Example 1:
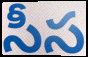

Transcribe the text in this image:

సీస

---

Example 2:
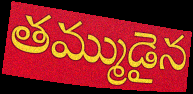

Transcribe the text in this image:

తమ్ముడైన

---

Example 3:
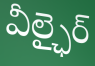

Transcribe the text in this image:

వీల్ఛైర్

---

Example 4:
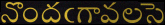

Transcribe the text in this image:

నొందఁగావలసె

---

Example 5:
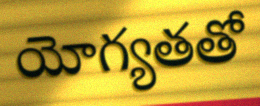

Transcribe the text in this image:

యోగ్యతతో